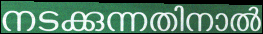
നടക്കുന്നതിനാൽ